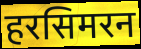
हरसिमरन